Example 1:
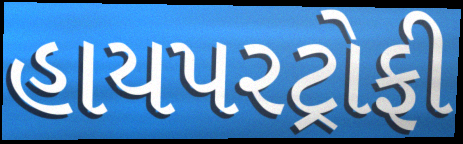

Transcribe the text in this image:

હાયપરટ્રોફી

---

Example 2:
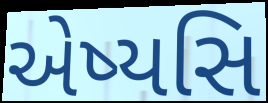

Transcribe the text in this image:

એષ્યસિ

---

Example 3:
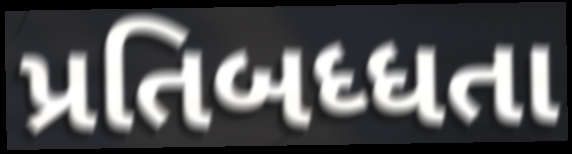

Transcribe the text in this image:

પ્રતિબધ્ધતા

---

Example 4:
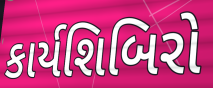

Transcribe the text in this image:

કાર્યશિબિરો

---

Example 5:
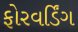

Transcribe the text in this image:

ફોરવર્ડિંગ